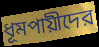
ধূমপায়ীদের